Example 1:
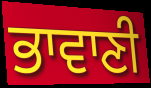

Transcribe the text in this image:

ਭਾਵਾਣੀ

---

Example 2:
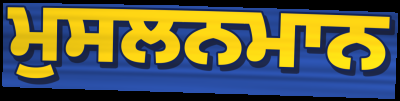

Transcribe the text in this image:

ਮੁਸਲਨਮਾਨ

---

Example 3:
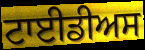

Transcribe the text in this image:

ਟਾਈਡੀਅਸ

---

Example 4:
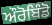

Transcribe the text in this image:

ਔਰੋਬਿੰਡੋ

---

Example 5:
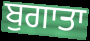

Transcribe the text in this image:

ਬੁਗਾਤਾ